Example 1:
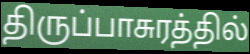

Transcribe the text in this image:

திருப்பாசுரத்தில்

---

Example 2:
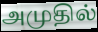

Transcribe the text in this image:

அமுதில்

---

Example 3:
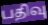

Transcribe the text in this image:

பதிவு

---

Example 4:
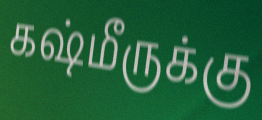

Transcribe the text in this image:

கஷ்மீருக்கு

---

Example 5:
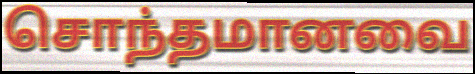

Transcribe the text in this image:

சொந்தமானவை